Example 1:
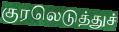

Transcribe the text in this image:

குரலெடுத்துச்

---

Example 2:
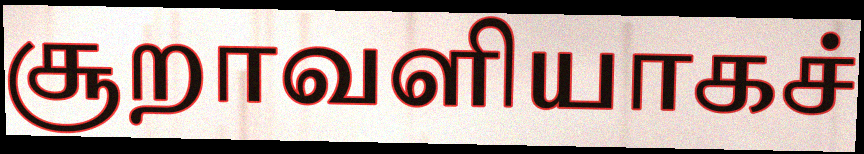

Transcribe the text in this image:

சூறாவளியாகச்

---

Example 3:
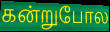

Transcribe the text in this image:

கன்றுபோல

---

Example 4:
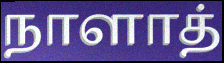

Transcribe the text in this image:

நாளாத்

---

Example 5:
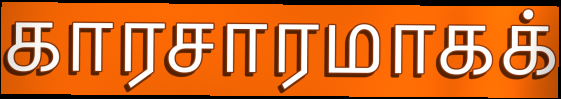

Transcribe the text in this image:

காரசாரமாகக்